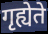
गृह्येते